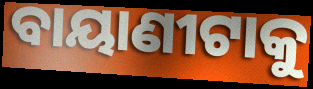
ବାୟାଣୀଟାକୁ